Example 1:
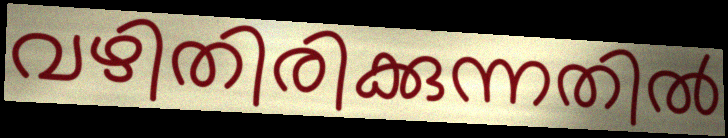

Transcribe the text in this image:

വഴിതിരിക്കുന്നതിൽ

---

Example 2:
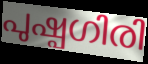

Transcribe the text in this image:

പുഷ്പഗിരി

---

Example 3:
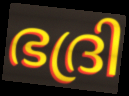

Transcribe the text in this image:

ഭദ്രി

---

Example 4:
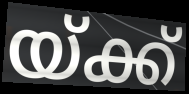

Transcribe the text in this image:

യ്ക്ക്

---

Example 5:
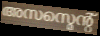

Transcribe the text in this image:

അസസ്മെന്റ്